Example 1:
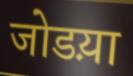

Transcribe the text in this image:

जोडय़ा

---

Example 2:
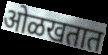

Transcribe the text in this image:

ओळखतात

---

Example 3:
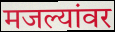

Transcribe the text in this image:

मजल्यांवर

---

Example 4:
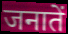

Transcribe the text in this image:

जनातें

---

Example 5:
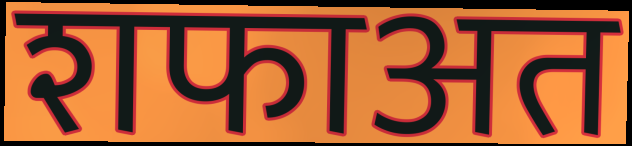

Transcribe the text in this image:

शफाअत